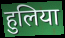
हुलिया